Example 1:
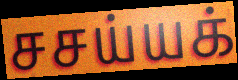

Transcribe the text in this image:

சசய்யக்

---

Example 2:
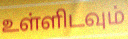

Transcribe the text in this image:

உள்ளிடவும்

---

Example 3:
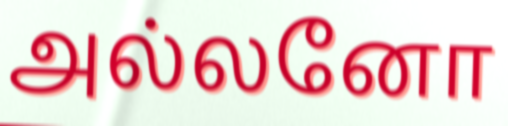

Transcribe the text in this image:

அல்லனோ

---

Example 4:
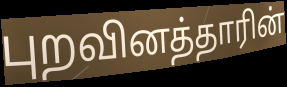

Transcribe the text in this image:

புறவினத்தாரின்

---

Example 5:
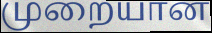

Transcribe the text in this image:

முறையான